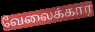
வேலைக்கார